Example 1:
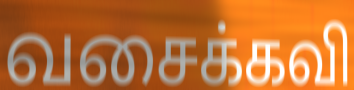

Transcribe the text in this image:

வசைக்கவி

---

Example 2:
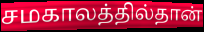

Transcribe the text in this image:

சமகாலத்தில்தான்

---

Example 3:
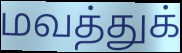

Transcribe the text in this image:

மவத்துக்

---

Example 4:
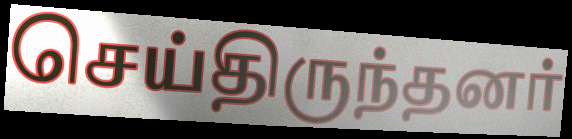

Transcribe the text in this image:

செய்திருந்தனர்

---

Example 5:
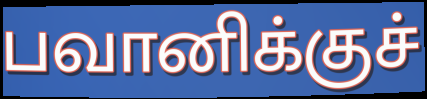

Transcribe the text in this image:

பவானிக்குச்